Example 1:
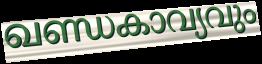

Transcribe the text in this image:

ഖണ്ഡകാവ്യവും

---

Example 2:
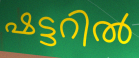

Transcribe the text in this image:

ഷട്ടറിൽ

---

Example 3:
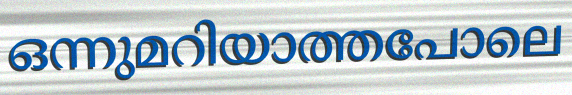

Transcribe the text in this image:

ഒന്നുമറിയാത്തപോലെ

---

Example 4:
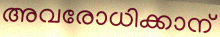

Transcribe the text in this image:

അവരോധിക്കാന്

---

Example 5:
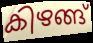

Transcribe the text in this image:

കിഴങ്ങ്